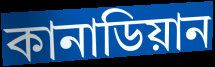
কানাডিয়ান